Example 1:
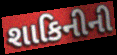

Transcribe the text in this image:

શાકિનીની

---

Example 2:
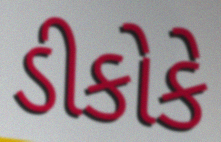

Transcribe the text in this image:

ડીકોકે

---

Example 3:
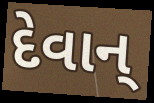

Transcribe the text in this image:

દેવાન્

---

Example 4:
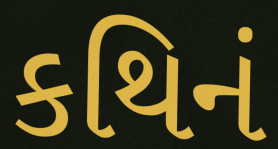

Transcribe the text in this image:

કથિનં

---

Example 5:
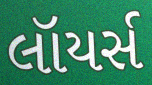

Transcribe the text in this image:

લૉયર્સ